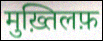
मुख़्तिलफ़